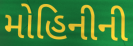
મોહિનીની